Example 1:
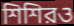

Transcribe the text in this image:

শিশিরও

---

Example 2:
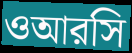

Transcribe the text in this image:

ওআরসি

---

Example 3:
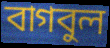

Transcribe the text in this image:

বাগবুল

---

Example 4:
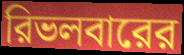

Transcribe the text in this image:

রিভলবারের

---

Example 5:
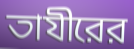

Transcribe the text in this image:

তাযীরের